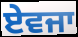
ਏਵਜਾ